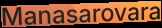
Manasarovara